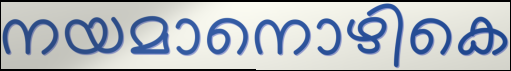
നയമാനൊഴികെ